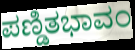
ಪಣ್ಡಿತಭಾವಂ